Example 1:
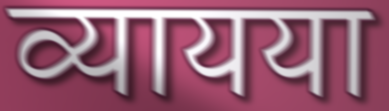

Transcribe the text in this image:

व्यायया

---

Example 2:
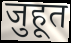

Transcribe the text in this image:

जुहूत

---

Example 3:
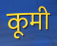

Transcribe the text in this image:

कूमी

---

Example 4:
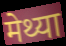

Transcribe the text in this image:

मेथ्या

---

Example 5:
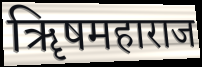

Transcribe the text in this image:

ॠिषमहाराज